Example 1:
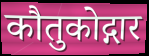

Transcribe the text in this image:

कौतुकोद्गार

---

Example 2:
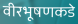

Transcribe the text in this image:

वीरभूषणकडे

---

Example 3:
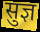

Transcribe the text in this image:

सुज्ञ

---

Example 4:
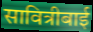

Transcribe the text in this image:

सावित्रीबाई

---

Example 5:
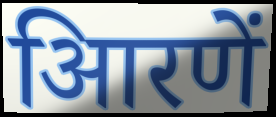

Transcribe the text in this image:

आिरणें